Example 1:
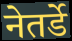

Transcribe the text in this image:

नेतर्डे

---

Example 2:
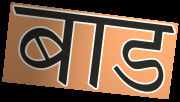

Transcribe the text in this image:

बाड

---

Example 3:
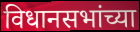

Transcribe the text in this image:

विधानसभांच्या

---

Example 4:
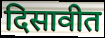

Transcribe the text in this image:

दिसावीत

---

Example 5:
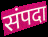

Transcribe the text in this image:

संपदा